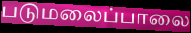
படுமலைப்பாலை